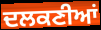
ਦਲਕਣੀਆਂ